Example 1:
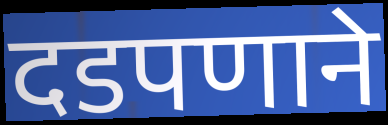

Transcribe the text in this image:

दडपणाने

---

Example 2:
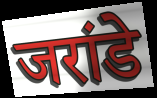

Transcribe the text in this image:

जरांडे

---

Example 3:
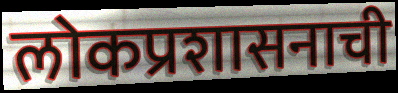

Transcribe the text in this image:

लोकप्रशासनाची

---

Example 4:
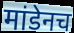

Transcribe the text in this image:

मांडेनच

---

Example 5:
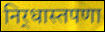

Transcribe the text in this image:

निर्धास्तपणा